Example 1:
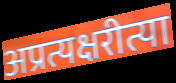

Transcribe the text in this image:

अप्रत्यक्षरीत्या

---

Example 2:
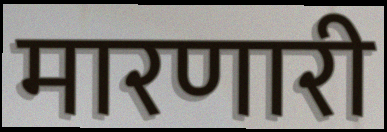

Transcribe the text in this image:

मारणारी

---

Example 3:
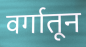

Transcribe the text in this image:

वर्गातून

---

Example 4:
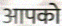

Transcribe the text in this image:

आपको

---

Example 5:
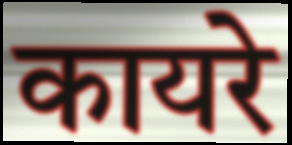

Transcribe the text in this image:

कायरे